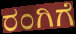
ರಂಗಿಗೆ